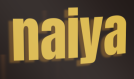
naiya